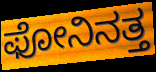
ಫೋನಿನತ್ತ